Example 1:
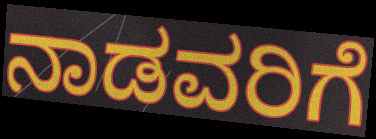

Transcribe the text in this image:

ನಾಡವರಿಗೆ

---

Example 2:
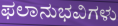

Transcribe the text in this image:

ಫಲಾನುಭವಿಗಳು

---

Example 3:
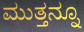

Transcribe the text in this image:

ಮುತ್ತನ್ನೂ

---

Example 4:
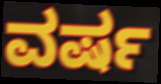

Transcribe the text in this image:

ವರ್ಷ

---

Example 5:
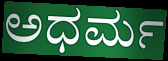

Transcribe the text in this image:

ಅಧರ್ಮ